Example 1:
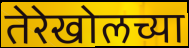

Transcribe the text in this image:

तेरेखोलच्या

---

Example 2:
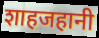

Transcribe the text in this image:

शाहजहानी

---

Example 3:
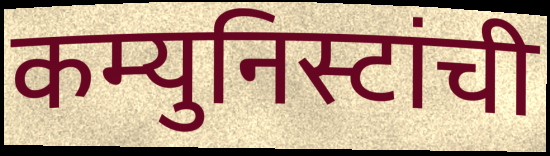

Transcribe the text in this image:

कम्युनिस्टांची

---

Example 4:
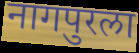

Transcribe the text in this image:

नागपुरला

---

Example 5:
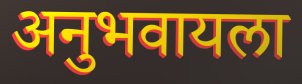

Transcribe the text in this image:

अनुभवायला